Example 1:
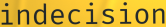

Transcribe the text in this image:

indecision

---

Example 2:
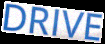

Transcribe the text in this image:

DRIVE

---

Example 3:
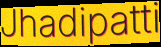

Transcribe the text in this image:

Jhadipatti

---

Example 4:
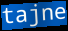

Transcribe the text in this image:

tajne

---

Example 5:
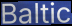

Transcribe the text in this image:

Baltic